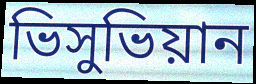
ভিসুভিয়ান